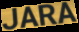
JARA